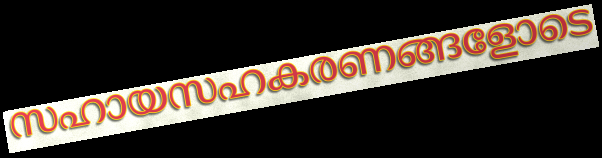
സഹായസഹകരണങ്ങളോടെ